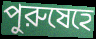
পুৰুষেহে